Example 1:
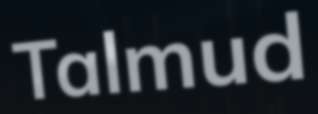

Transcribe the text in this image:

Talmud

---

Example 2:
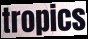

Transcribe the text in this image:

tropics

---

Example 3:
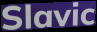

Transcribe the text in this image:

Slavic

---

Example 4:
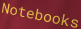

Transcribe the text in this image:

Notebooks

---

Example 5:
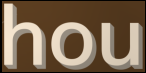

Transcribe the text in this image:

hou